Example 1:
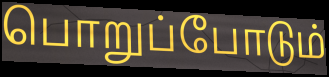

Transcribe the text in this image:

பொறுப்போடும்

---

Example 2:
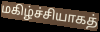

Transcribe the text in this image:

மகிழ்ச்சியாகத்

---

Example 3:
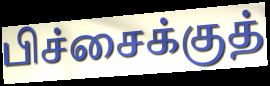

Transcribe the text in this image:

பிச்சைக்குத்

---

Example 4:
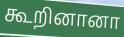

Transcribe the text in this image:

கூறினானா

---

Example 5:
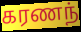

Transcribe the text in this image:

கரணந்